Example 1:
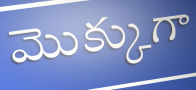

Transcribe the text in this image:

మొక్కుగా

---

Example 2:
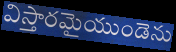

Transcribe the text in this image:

విస్తారమైయుండెను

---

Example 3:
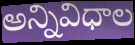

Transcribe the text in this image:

అన్నివిధాల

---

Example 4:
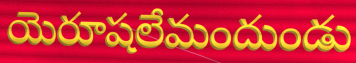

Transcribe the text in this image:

యెరూషలేమందుండు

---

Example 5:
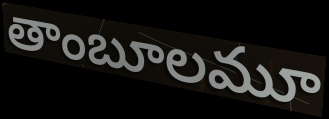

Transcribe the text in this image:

తాంబూలమూ